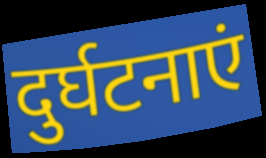
दुर्घटनाएं